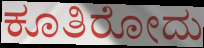
ಕೂತಿರೋದು